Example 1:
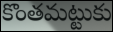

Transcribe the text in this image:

కొంతమట్టుకు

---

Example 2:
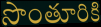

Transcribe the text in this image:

సొంతూరికి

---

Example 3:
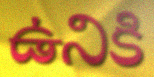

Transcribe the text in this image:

ఉనికి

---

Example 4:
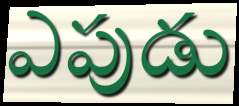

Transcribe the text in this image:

ఎపుడు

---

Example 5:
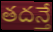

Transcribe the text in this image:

తదన్తే